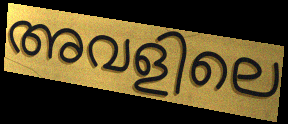
അവളിലെ